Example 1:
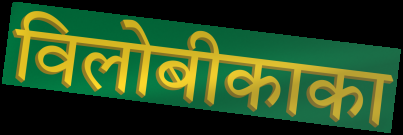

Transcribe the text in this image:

विलोबीकाका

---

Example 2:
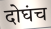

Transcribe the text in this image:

दोघंच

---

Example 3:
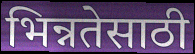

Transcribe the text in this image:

भिन्नतेसाठी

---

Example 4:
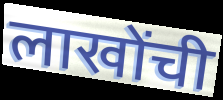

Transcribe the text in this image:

लाखोंची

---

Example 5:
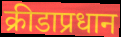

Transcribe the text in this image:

क्रीडाप्रधान